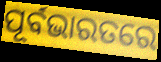
ପୂର୍ବଭାରତରେ